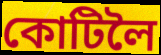
কোটিলৈ